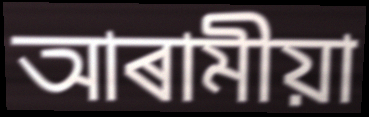
আৰামীয়া